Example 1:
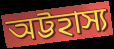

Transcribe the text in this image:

অট্টহাস্য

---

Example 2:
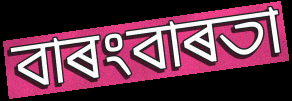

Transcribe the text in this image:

বাৰংবাৰতা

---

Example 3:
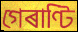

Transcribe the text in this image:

গেৰাণ্টি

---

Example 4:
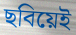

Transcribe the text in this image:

ছবিয়েই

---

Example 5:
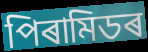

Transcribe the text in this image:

পিৰামিডৰ